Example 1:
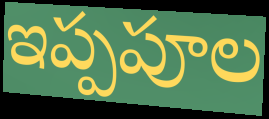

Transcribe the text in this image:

ఇప్పపూల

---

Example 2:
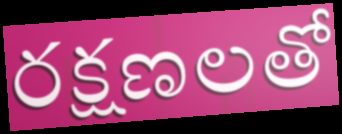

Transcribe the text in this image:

రక్షణలతో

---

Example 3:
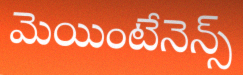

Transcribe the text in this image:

మెయింటేనెన్స్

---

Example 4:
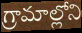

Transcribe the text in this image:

గ్రామాల్లోని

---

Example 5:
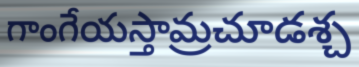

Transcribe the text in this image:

గాంగేయస్తామ్రచూడశ్చ